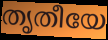
തൃതീയേ